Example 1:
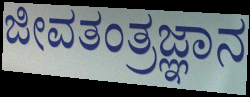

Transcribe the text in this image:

ಜೀವತಂತ್ರಜ್ಞಾನ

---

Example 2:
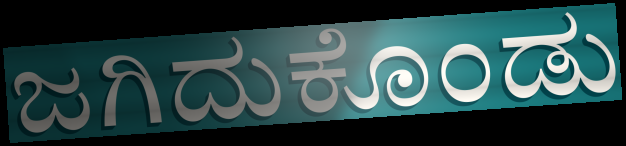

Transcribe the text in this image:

ಜಗಿದುಕೊಂಡು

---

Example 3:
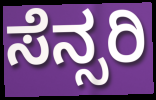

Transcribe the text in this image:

ಸೆನ್ಸರಿ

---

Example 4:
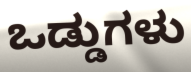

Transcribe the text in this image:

ಒಡ್ಡುಗಳು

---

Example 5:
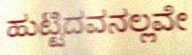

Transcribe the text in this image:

ಹುಟ್ಟಿದವನಲ್ಲವೇ